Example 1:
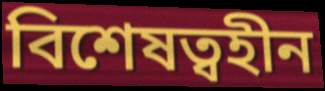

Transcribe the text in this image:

বিশেষত্বহীন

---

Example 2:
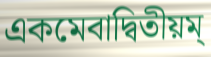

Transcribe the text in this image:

একমেবাদ্বিতীয়ম্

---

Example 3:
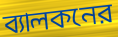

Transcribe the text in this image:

ব্যালকনের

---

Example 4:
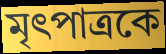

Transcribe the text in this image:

মৃৎপাত্রকে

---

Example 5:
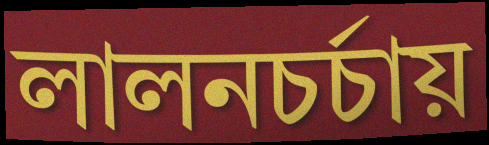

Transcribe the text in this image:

লালনচর্চায়